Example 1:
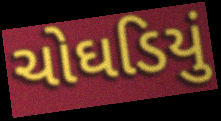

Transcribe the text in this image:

ચોઘડિયું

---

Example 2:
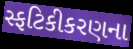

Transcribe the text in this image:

સ્ફટિકીકરણના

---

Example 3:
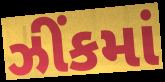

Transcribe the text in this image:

ઝીંકમાં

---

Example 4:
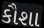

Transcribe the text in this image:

કૌશા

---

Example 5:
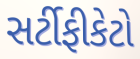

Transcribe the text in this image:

સર્ટીફીકેટો